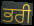
ਭਰੀ